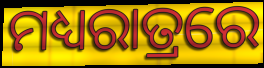
ମଧ୍ୟରାତ୍ରରେ